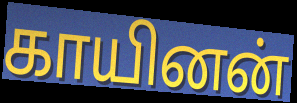
காயினன்